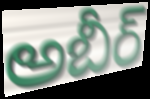
అబీర్